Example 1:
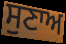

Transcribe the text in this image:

ਸੁਣਾਅ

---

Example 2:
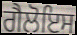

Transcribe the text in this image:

ਗੈਲੋਇਸ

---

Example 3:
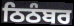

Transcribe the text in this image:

ਠਿਠੰਬਰ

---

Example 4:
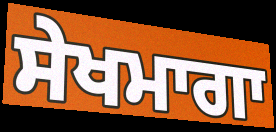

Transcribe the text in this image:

ਸੇਖਮਾਗਾ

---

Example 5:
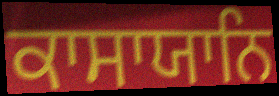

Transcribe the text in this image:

ਕਾਸਾਯਾਨਿ